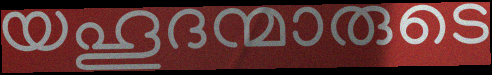
യഹൂദന്മാരുടെ